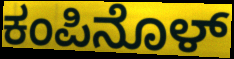
ಕಂಪಿನೊಳ್